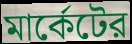
মার্কেটের